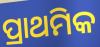
ପ୍ରାଥମିକ